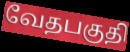
வேதபகுதி